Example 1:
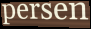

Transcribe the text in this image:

persen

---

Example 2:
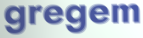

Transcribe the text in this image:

gregem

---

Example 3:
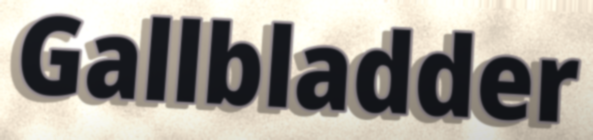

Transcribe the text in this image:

Gallbladder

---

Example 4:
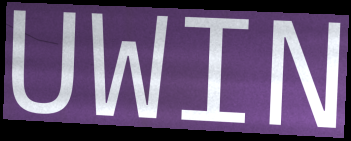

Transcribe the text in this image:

UWIN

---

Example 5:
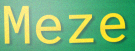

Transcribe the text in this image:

Meze